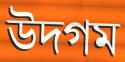
উদগম